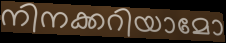
നിനക്കറിയാമോ